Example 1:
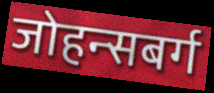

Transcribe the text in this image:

जोहन्सबर्ग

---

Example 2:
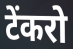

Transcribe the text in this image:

टेंकरो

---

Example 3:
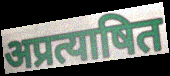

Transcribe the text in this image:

अप्रत्याषित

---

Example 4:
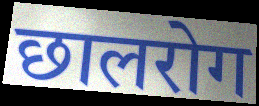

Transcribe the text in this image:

छालरोग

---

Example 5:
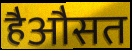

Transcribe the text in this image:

हैऔसत